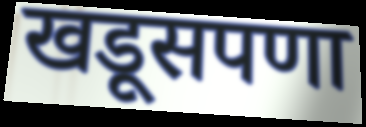
खडूसपणा